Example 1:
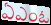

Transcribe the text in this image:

ఏఎంఓ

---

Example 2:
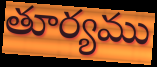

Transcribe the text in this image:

తూర్యము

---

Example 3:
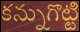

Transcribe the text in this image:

కన్నుగొట్టి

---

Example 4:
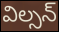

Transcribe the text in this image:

విల్సన్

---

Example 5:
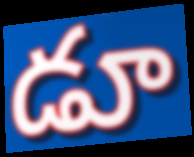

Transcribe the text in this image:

డూ